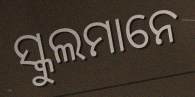
ସ୍କୁଲମାନେ